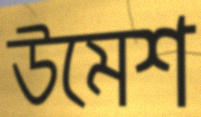
উমেশ